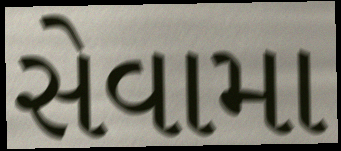
સેવામા